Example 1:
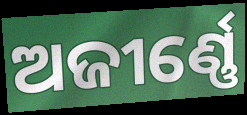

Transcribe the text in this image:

ଅଜୀର୍ଣ୍ଣେ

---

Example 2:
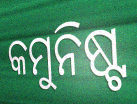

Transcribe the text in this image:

କମୁନିଷ୍ଟ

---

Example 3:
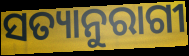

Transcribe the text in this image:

ସତ୍ୟାନୁରାଗୀ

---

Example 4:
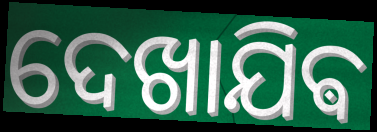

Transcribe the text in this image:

ଦେଖାଯିଵ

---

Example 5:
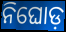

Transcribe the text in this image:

ନିଘୋଡ଼